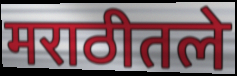
मराठीतले